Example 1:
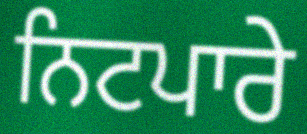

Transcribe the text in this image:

ਨਿਟਪਾਰੇ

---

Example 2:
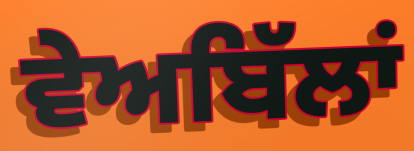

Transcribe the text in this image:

ਵੇਅਬਿੱਲਾਂ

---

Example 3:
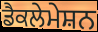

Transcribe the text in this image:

ਡੈਕਲੇਮੇਸ਼ਨ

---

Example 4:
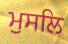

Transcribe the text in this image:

ਮੁਸਲਿ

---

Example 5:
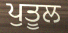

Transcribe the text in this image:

ਪੁਤੂਲ